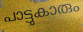
പാട്ടുകാരും